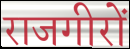
राजगीरों